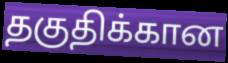
தகுதிக்கான